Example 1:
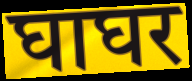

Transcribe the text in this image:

घाघर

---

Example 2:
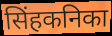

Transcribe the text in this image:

सिंहकनिका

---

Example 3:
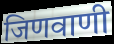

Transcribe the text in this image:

जिणवाणी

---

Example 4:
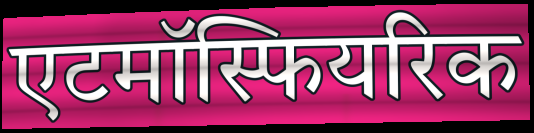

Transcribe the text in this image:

एटमॉस्फियरिक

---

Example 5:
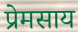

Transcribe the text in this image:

प्रेमसाय